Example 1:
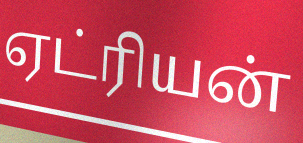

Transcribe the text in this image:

ஏட்ரியன்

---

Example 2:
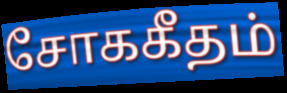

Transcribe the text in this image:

சோககீதம்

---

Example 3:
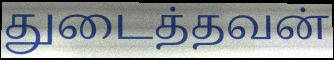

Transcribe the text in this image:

துடைத்தவன்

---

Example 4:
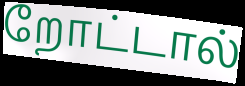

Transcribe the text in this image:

றோட்டால்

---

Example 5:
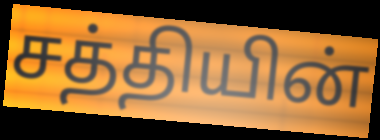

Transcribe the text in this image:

சத்தியின்